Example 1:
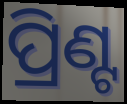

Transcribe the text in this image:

ପ୍ରିଣ୍ଟ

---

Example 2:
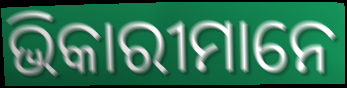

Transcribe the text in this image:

ଭିକାରୀମାନେ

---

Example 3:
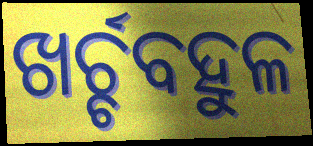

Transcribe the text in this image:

ଖର୍ଚ୍ଚବହୁଳ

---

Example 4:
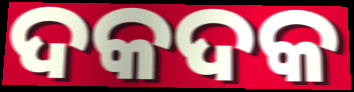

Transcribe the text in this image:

ଦକଦକ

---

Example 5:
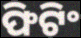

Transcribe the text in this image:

ଫିଟିଂ